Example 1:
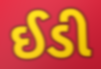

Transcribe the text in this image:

ઈડી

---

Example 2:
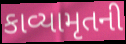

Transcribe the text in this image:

કાવ્યામૃતની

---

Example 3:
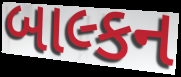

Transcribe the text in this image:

બાલ્કન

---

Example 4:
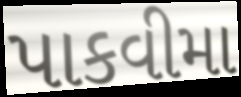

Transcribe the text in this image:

પાકવીમા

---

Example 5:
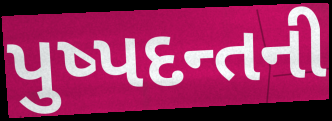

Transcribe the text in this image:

પુષ્પદન્તની